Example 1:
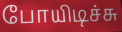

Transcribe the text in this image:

போயிடிச்சு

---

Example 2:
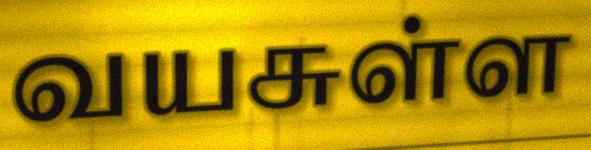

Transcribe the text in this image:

வயசுள்ள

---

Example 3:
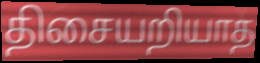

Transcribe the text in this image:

திசையறியாத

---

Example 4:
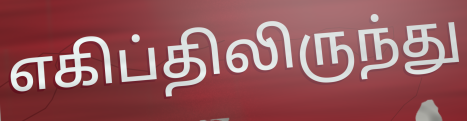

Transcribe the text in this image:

எகிப்திலிருந்து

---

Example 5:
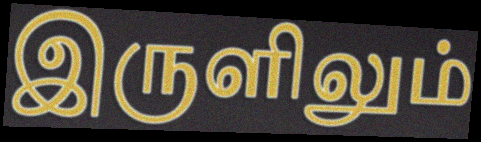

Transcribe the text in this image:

இருளிலும்